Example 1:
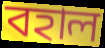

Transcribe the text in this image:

বহাল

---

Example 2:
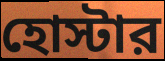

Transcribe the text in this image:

হোস্টার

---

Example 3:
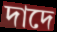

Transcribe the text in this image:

দাদে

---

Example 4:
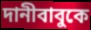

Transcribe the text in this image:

দানীবাবুকে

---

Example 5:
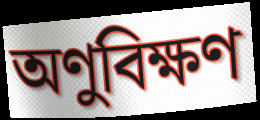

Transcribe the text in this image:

অণুবিক্ষণ